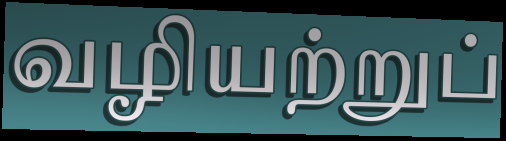
வழியற்றுப்